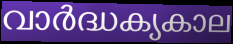
വാർദ്ധക്യകാല